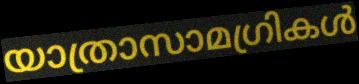
യാത്രാസാമഗ്രികൾ